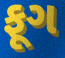
ફૂગ